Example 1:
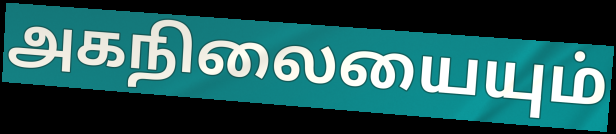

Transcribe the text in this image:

அகநிலையையும்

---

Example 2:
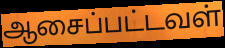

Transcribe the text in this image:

ஆசைப்பட்டவள்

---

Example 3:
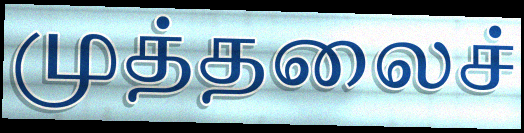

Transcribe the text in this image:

முத்தலைச்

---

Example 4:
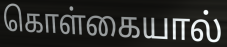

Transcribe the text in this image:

கொள்கையால்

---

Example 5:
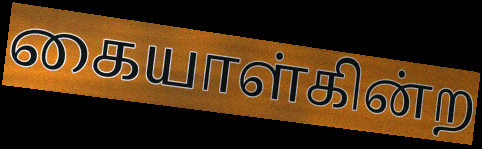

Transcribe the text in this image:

கையாள்கின்ற